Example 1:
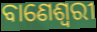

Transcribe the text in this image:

ବାଣେଶ୍ୱରୀ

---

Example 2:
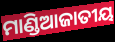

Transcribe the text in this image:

ମାଣ୍ଡିଆଜାତୀୟ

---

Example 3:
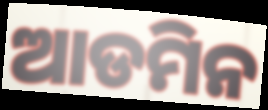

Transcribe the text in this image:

ଆଡମିନ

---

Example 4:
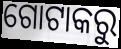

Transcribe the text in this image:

ଗୋଟାକରୁ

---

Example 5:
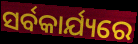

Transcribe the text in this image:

ସର୍ବକାର୍ଯ୍ୟରେ